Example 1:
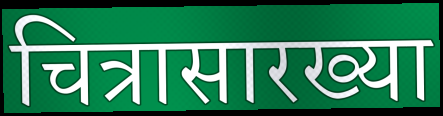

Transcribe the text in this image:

चित्रासारख्या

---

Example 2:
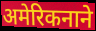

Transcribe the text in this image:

अमेरिकनाने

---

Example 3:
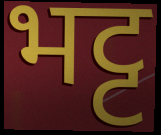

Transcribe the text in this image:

भट्ट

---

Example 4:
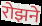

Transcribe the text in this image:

रोझने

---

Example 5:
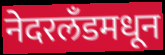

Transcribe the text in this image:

नेदरलँडमधून